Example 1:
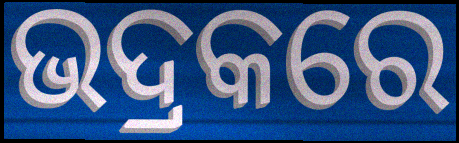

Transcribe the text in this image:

ଭଦ୍ରକରେ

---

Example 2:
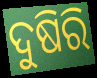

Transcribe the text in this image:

ଦୁଷିରି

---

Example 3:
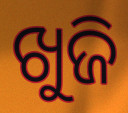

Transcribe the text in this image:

ଖୁଜି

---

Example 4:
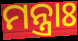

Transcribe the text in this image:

ମନ୍ତ୍ରାଃ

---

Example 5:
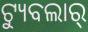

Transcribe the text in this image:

ଟ୍ୟୁବଲାର୍